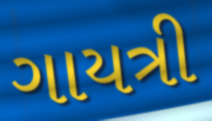
ગાયત્રી